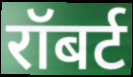
रॉबर्ट